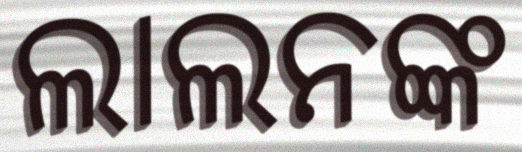
ଲାଲନଙ୍କ